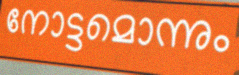
നോട്ടമൊന്നും